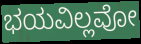
ಭಯವಿಲ್ಲವೋ